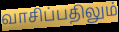
வாசிப்பதிலும்